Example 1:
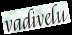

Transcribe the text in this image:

vadivelu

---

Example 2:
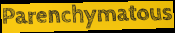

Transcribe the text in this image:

Parenchymatous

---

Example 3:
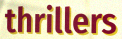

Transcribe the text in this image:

thrillers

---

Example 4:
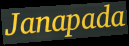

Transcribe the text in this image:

Janapada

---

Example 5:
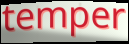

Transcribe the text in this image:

temper